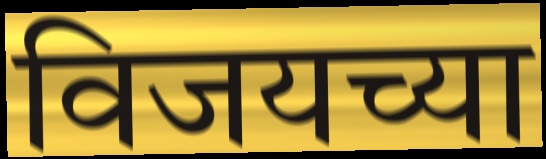
विजयच्या